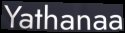
Yathanaa